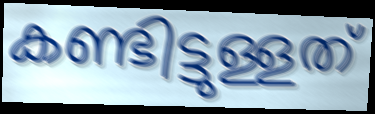
കണ്ടിട്ടുള്ളത്